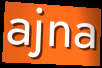
ajna